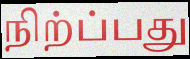
நிற்ப்பது